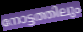
നോട്ടത്തിലും